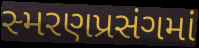
સ્મરણપ્રસંગમાં